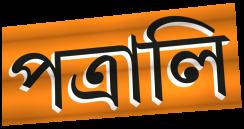
পত্রালি